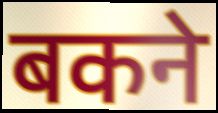
बकने